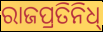
ରାଜପ୍ରତିନିଧ୍